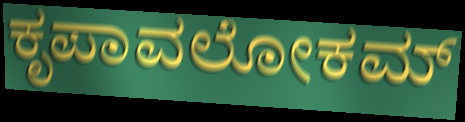
ಕೃಪಾವಲೋಕಮ್